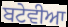
ਬਟੇਵੀਆ